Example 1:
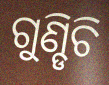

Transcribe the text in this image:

ଗୁଣ୍ଡିଚି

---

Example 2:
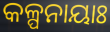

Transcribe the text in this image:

କଳ୍ପନାୟାଃ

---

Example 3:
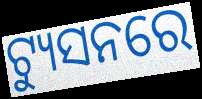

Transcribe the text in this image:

ଟ୍ୟୁସନରେ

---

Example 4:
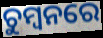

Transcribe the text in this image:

ଚୁମ୍ବନରେ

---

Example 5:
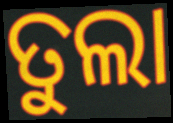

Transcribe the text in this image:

ତୁଲା